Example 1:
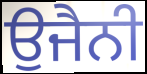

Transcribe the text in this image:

ਉਜੈਨੀ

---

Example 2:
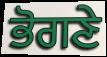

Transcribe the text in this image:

ਭੋਗਣੇ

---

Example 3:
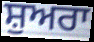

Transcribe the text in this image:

ਸ਼ੁਅਰਾ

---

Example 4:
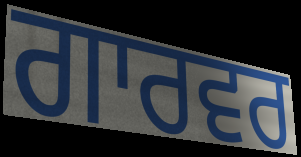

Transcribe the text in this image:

ਗਾਰਵਰ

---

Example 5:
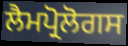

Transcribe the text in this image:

ਲੈਮਪ੍ਰੋਲੋਗਸ